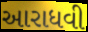
આરાધવી